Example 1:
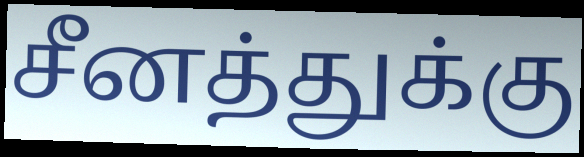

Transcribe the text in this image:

சீனத்துக்கு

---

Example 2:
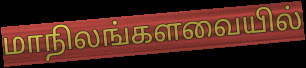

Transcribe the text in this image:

மாநிலங்களவையில்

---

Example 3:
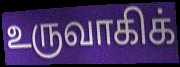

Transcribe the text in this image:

உருவாகிக்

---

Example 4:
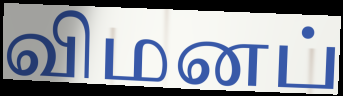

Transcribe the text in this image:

விமனப்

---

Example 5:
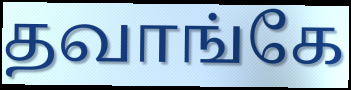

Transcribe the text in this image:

தவாங்கே